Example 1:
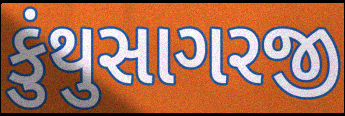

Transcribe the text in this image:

કુંથુસાગરજી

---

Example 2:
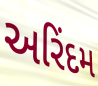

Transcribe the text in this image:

અરિંદમ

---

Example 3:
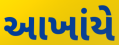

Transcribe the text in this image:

આખાંયે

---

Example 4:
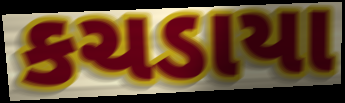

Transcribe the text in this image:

કચડાયા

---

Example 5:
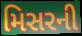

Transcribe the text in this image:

મિસરની